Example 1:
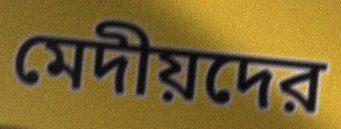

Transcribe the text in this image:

মেদীয়দের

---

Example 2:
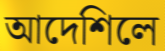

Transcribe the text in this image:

আদেশিলে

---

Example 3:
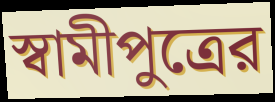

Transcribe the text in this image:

স্বামীপুত্রের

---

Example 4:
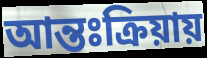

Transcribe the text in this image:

আন্তঃক্রিয়ায়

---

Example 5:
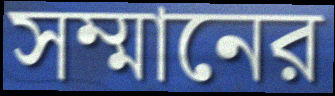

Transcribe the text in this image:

সম্মানের